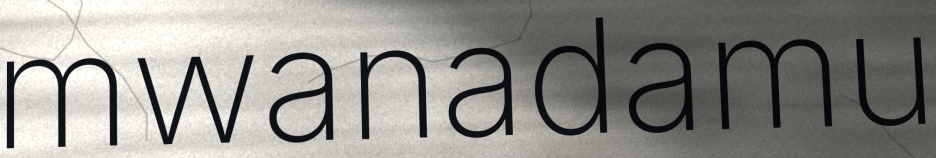
mwanadamu